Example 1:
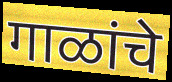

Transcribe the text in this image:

गाळांचे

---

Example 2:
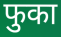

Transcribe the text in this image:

फुका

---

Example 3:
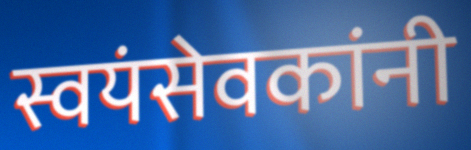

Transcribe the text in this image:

स्वयंसेवकांनी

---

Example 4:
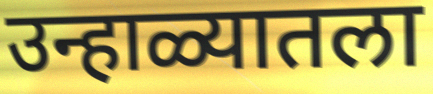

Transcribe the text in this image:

उन्हाळ्यातला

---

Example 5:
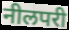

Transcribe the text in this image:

नीलपरी